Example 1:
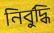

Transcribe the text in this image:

নির্বুদ্ধি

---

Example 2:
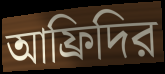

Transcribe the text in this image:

আফ্রিদির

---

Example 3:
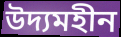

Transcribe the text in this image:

উদ্যমহীন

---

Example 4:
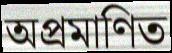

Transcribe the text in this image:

অপ্রমাণিত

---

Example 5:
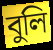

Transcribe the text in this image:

বুলি